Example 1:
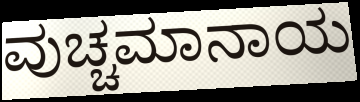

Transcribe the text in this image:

ವುಚ್ಚಮಾನಾಯ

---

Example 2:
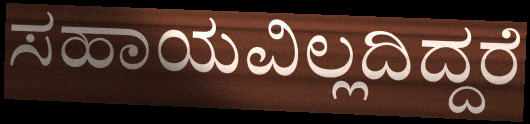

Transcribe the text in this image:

ಸಹಾಯವಿಲ್ಲದಿದ್ದರೆ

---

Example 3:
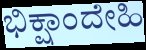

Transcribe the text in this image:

ಭಿಕ್ಷಾಂದೇಹಿ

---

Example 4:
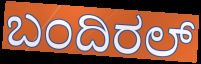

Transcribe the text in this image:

ಬಂದಿರಲ್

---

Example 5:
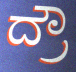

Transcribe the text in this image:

ದ್ರೌ